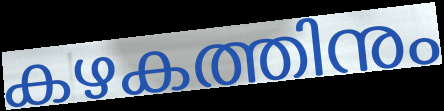
കഴകത്തിനും